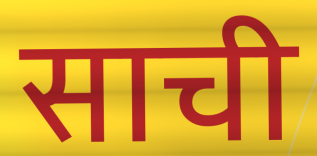
साची